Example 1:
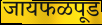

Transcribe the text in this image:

जायफळपूड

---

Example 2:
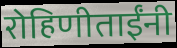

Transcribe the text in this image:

रोहिणीताईंनी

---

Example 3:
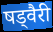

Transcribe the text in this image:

षड्वैरी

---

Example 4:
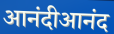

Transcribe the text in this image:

आनंदीआनंद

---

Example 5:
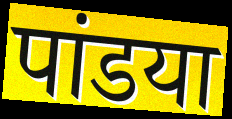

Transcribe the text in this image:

पांडया